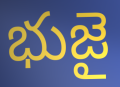
భుజై